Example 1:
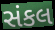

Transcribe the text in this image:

સંકલ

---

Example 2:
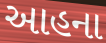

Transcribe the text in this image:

આહના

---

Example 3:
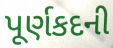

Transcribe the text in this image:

પૂર્ણકદની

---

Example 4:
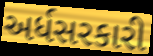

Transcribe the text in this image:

અર્ધસરકારી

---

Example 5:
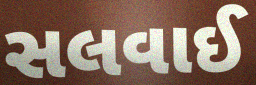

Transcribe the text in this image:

સલવાઈ